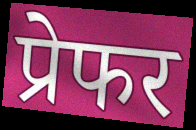
प्रेफर